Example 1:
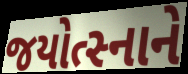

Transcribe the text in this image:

જયોત્સ્નાને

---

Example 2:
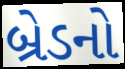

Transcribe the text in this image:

બ્રેડનો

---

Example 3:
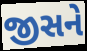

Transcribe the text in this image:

જીસને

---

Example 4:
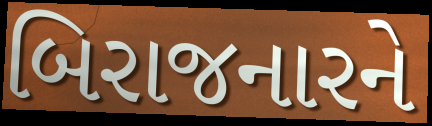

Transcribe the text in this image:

બિરાજનારને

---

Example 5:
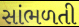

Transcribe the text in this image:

સાંભળતી